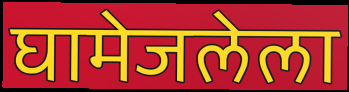
घामेजलेला